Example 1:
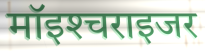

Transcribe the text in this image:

मॉइश्‍चराइजर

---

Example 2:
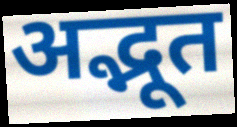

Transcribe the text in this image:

अद्भूत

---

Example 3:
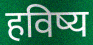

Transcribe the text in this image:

हविष्‍य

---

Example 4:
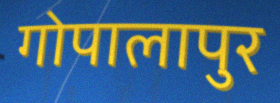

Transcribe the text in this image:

गोपालापुर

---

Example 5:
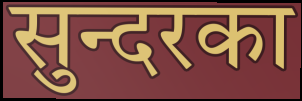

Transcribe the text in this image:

सुन्दरका